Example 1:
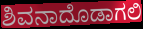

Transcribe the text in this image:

ಶಿವನಾದೊಡಾಗಲಿ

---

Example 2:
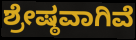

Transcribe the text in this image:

ಶ್ರೇಷ್ಠವಾಗಿವೆ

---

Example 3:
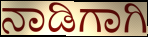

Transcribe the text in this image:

ನಾಡಿಗಾಗಿ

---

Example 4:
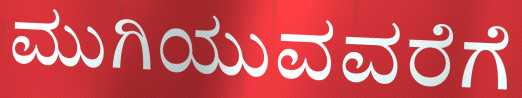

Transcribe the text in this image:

ಮುಗಿಯುವವರೆಗೆ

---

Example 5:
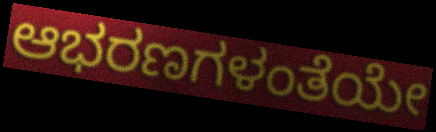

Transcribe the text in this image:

ಆಭರಣಗಳಂತೆಯೇ